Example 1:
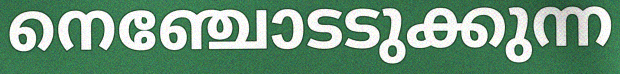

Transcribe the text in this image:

നെഞ്ചോടടുക്കുന്ന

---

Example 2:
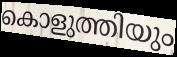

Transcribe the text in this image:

കൊളുത്തിയും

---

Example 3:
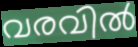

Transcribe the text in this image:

വരവിൽ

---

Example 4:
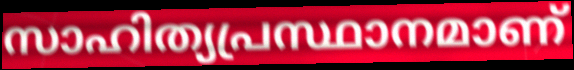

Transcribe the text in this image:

സാഹിത്യപ്രസ്ഥാനമാണ്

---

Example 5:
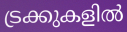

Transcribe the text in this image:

ട്രക്കുകളിൽ